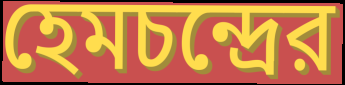
হেমচন্দ্রের